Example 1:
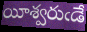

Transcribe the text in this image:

యీశ్వరుఁడే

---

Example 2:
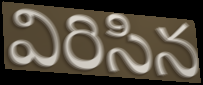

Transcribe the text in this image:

విరిసిన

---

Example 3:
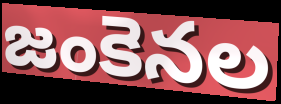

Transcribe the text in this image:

జంకెనల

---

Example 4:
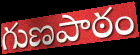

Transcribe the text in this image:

గుణపాఠం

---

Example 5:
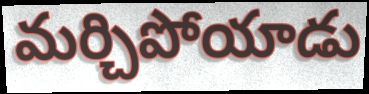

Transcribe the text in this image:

మర్చిపోయాడు